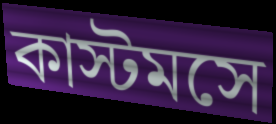
কাস্টমসে